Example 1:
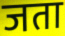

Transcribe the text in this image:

जता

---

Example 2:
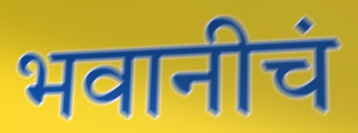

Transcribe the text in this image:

भवानीचं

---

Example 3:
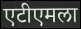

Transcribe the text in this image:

एटीएमला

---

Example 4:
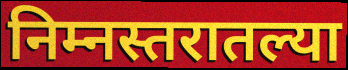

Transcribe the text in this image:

निम्नस्तरातल्या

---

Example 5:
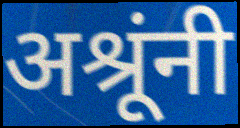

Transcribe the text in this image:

अश्रूंनी